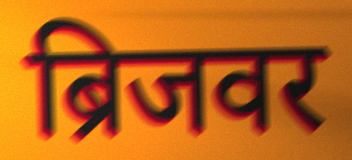
ब्रिजवर